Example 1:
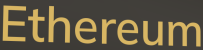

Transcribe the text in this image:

Ethereum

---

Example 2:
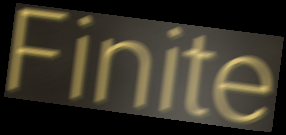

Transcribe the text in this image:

Finite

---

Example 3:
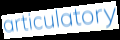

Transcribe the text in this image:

articulatory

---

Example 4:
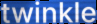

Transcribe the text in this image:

twinkle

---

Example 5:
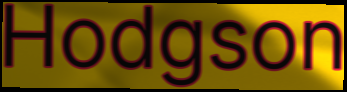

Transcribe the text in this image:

Hodgson